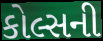
કોલ્સની